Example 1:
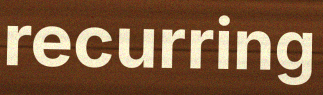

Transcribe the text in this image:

recurring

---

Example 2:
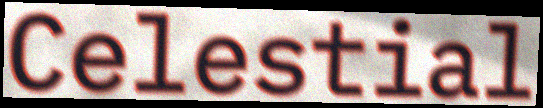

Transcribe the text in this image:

Celestial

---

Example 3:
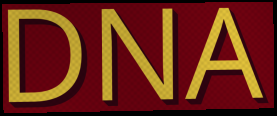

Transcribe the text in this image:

DNA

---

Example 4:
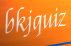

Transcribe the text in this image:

bkjquiz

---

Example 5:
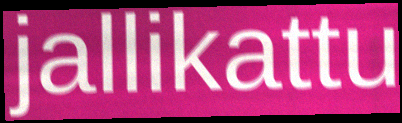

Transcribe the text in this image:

jallikattu